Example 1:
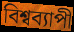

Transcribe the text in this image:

বিশ্বব্যাপী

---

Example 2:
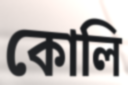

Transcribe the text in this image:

কোলি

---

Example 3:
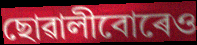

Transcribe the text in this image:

ছোৱালীবোৰেও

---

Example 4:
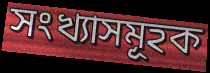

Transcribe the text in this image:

সংখ্যাসমূহক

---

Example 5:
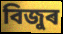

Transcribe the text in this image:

বিজুৰ